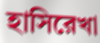
হাসিরেখা